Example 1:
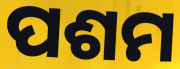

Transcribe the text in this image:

ପଶମ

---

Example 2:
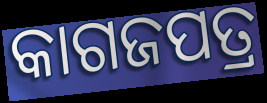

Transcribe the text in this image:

କାଗଜପତ୍ର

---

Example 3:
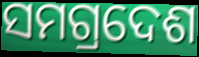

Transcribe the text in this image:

ସମଗ୍ରଦେଶ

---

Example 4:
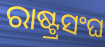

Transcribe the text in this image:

ରାଷ୍ଟ୍ରସଂଘ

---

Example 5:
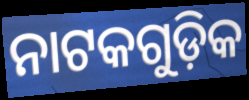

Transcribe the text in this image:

ନାଟକଗୁଡ଼ିକ